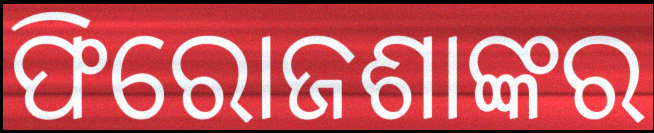
ଫିରୋଜଶାଙ୍କର